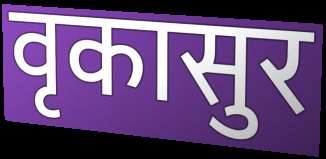
वृकासुर